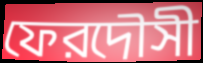
ফেরদৌসী